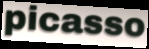
picasso